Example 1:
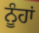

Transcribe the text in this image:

ਨੂੰਹਾਂ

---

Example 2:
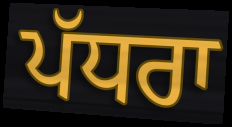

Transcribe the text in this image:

ਪੱਧਰਾ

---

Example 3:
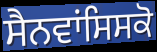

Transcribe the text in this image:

ਸੈਨਵਾਂਸਿਸਕੋ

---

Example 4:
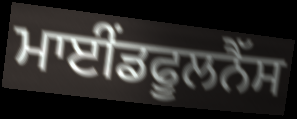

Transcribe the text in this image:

ਮਾਈਂਡਫੂਲਨੈੱਸ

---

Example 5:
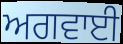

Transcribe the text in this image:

ਅਗਵਾਈ